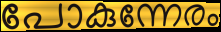
പോകുന്നേരം